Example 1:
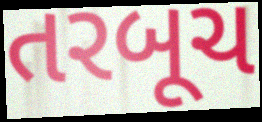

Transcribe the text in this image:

તરબૂચ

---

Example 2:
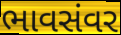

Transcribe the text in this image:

ભાવસંવર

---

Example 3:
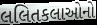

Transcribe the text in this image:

લલિતકલાઓનો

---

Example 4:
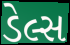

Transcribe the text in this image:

ડેલ્સ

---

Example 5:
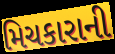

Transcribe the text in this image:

મિચકારાની